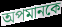
অপমানকে